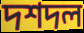
দশদল